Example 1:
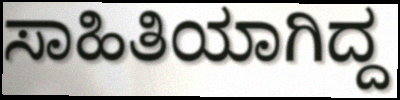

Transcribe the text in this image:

ಸಾಹಿತಿಯಾಗಿದ್ದ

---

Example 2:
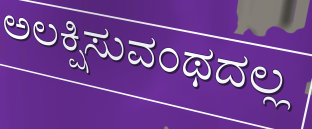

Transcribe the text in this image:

ಅಲಕ್ಷಿಸುವಂಥದಲ್ಲ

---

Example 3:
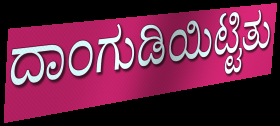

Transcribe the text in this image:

ದಾಂಗುಡಿಯಿಟ್ಟಿತು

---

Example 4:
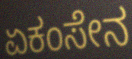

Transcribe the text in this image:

ಏಕಂಸೇನ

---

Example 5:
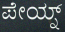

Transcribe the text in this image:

ಪೇಯ್ನ್